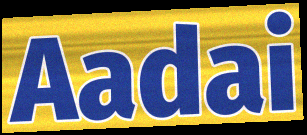
Aadai